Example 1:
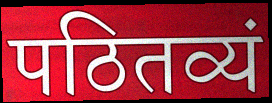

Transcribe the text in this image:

पठितव्यं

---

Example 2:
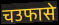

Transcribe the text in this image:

चउफासे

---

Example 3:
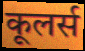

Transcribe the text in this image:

कूलर्स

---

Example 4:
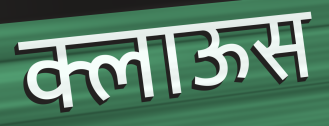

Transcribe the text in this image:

क्लाऊस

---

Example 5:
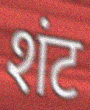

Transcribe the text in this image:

शंट